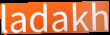
ladakh